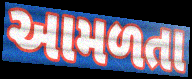
આમળતા